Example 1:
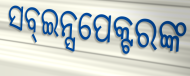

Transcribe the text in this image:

ସବ୍ଇନ୍ସପେକ୍ଟରଙ୍କ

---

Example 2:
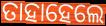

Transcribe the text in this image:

ତାହାହେଲେ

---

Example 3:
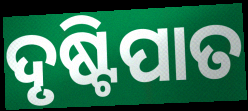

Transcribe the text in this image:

ଦୃଷ୍ଟିପାତ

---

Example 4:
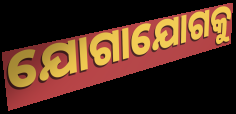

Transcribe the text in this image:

ଯୋଗାଯୋଗକୁ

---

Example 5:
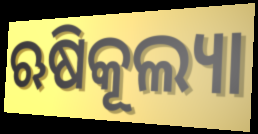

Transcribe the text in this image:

ଋଷିକୂଲ୍ୟା